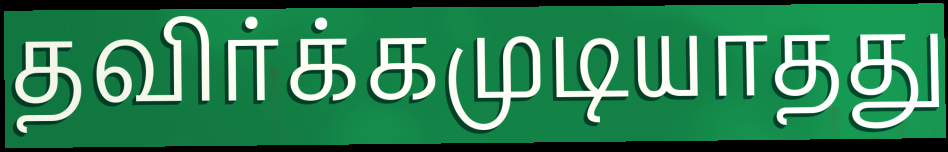
தவிர்க்கமுடியாதது